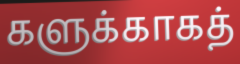
களுக்காகத்